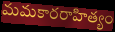
మమకారరాహిత్యం